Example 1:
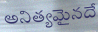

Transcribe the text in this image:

అనిత్యమైనదే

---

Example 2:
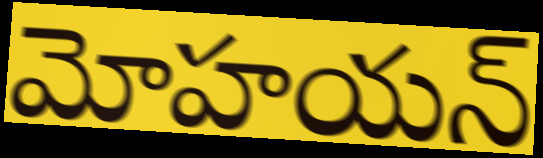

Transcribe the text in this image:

మోహయన్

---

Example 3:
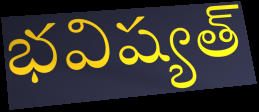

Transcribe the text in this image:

భవిష్యత్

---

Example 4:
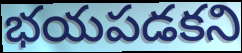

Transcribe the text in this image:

భయపడకని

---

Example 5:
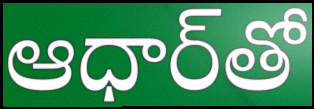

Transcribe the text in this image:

ఆధార్‌తో